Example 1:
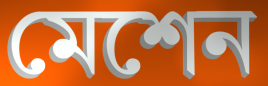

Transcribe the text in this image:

মেশেন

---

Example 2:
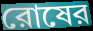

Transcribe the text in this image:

রোষের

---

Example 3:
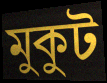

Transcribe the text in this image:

মুকুট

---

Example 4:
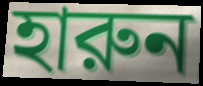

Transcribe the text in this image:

হারুন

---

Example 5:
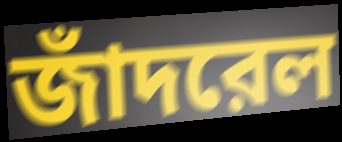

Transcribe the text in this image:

জাঁদরেল